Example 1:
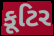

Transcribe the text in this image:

કૂટિર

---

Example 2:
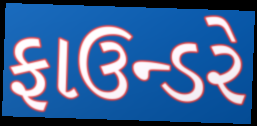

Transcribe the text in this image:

ફાઉન્ડરે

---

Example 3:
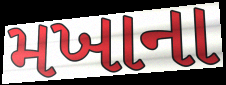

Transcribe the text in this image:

મખાના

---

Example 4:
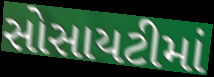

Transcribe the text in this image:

સોસાયટીમાં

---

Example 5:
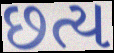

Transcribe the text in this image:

છત્ય